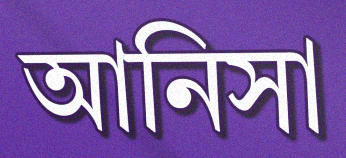
আনিসা